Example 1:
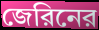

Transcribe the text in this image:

জেরিনের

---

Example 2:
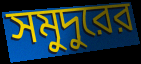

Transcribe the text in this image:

সমুদুরের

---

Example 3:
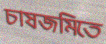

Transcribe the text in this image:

চাষজমিতে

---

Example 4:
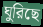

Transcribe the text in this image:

ঘুরিছে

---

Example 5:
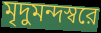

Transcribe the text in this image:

মৃদুমন্দস্বরে